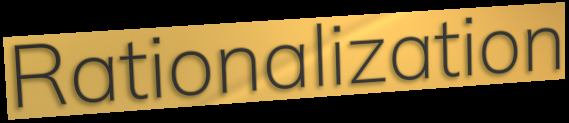
Rationalization